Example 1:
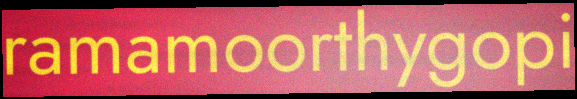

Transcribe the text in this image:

ramamoorthygopi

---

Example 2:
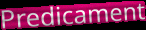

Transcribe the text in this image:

Predicament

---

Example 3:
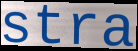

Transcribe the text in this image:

stra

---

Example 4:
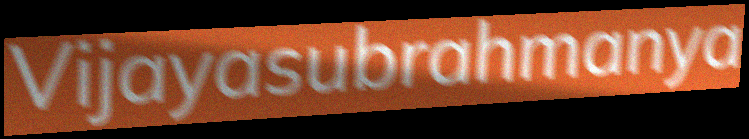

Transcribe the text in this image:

Vijayasubrahmanya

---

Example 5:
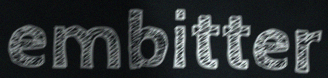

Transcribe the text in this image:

embitter